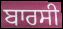
ਬਾਰਸੀ